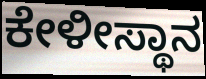
ಕೇಳೀಸ್ಥಾನ